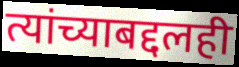
त्यांच्याबद्दलही